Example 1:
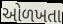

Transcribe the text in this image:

ઓળખતા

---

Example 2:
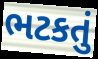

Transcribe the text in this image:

ભટકતું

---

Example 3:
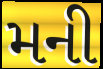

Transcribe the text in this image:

મની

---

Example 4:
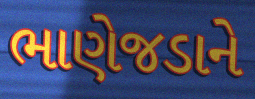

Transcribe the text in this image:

ભાણેજડાને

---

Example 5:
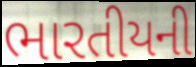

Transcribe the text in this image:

ભારતીયની